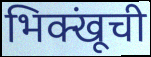
भिक्खूंची